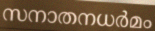
സനാതനധർമം